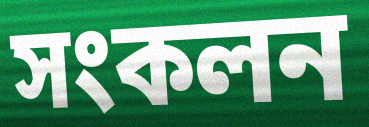
সংকলন